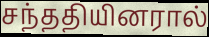
சந்ததியினரால்